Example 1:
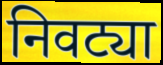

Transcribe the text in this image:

निवट्या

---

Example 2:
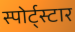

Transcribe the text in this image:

स्पोर्ट्स्टार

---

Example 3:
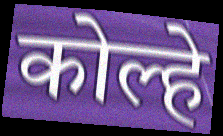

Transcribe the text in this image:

कोल्हे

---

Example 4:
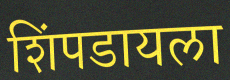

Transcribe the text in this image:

शिंपडायला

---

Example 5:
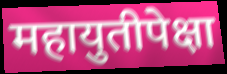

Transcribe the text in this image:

महायुतीपेक्षा